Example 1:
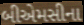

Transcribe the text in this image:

બીએમસીના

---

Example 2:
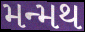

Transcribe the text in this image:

મન્મથ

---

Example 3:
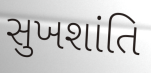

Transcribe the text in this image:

સુખશાંતિ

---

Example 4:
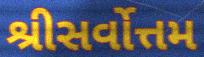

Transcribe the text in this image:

શ્રીસર્વોત્તમ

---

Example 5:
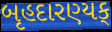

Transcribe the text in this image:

બૃહદારણ્યક્